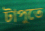
টাপুতে